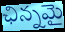
ఛిన్నమై